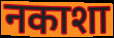
नकाशा